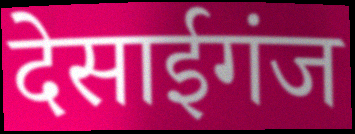
देसाईगंज